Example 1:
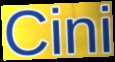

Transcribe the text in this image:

Cini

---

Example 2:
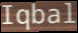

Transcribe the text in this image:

Iqbal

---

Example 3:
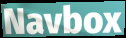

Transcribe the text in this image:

Navbox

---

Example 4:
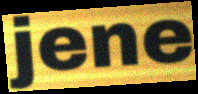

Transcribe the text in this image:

jene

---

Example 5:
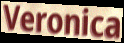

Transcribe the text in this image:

Veronica